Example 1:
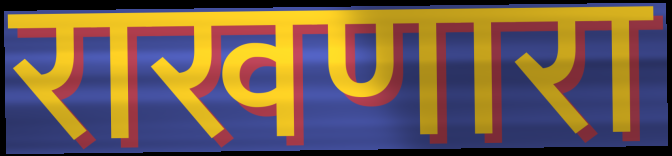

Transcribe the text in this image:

राखणारा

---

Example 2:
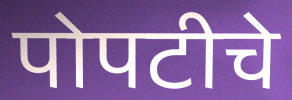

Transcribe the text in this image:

पोपटीचे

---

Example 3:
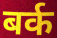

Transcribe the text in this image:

बर्क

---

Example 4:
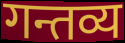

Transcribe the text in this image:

गन्तव्य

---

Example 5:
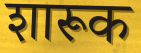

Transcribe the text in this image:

शारूक